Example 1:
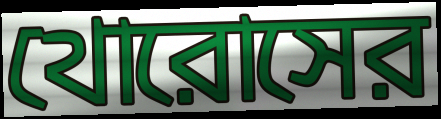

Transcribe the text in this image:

থোরোসের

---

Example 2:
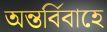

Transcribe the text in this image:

অন্তর্বিবাহে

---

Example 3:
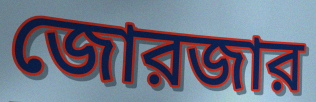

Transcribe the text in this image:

জোরজার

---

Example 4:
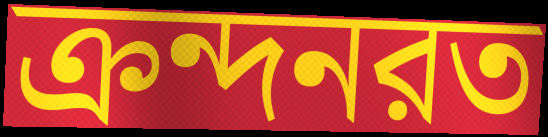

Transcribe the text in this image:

ক্রন্দনরত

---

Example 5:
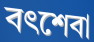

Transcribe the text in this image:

বৎশেবা